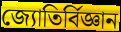
জ্যোতিৰ্বিজ্ঞান